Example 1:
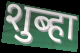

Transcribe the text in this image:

शुब्हा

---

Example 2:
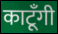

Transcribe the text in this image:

काटूँगी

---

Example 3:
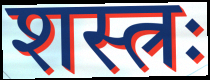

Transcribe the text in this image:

शस्त्रः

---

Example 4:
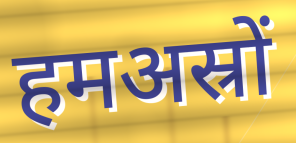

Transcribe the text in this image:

हमअस्रों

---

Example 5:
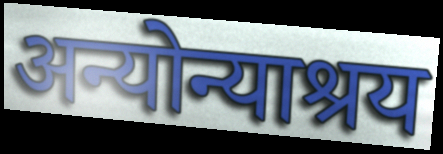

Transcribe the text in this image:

अन्योन्याश्रय